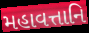
મહાવત્તાનિ